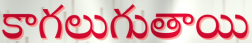
కాగలుగుతాయి